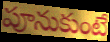
పూనుకుంటే